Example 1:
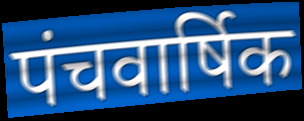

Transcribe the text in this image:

पंचवार्षिक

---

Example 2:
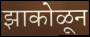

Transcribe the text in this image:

झाकोळून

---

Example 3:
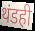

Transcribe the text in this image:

थंडही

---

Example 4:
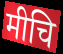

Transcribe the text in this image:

मीचि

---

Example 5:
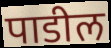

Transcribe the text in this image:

पाडील